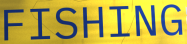
FISHING